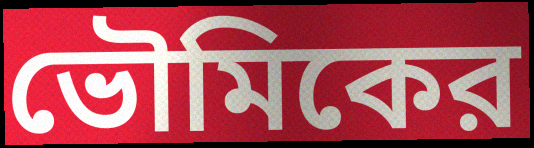
ভৌমিকের